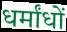
धर्मांधों